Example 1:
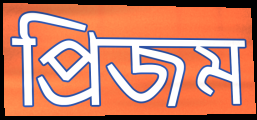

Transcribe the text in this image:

প্রিজম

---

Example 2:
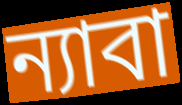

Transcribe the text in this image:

ন্যাবা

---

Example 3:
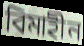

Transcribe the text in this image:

বিমাহীন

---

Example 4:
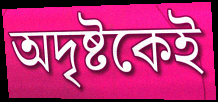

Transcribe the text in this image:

অদৃষ্টকেই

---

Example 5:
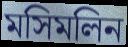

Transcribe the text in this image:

মসিমলিন